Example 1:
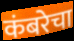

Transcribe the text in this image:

कंबरेचा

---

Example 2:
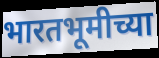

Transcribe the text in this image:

भारतभूमीच्या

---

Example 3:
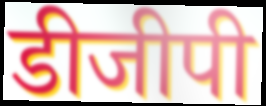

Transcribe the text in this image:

डीजीपी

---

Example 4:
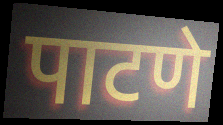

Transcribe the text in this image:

पाटणे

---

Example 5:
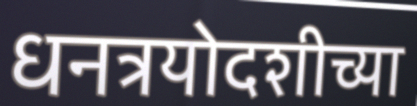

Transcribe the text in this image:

धनत्रयोदशीच्या